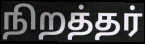
நிறத்தர்